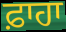
ਫ਼ਾਹਾ